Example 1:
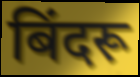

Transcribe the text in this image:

बिंदरू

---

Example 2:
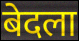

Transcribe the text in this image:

बेदला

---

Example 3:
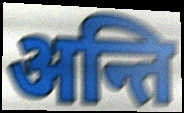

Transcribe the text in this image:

अन्ति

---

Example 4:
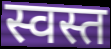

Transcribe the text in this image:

स्वस्त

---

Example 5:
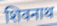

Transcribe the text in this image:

शिवनाथ